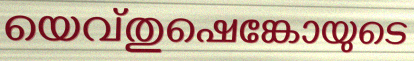
യെവ്തുഷെങ്കോയുടെ